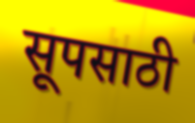
सूपसाठी